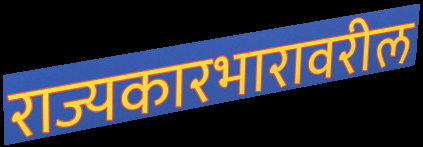
राज्यकारभारावरील